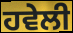
ਹਵੇਲੀ